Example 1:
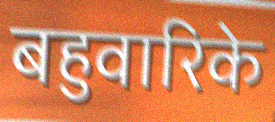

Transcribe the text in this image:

बहुवारिके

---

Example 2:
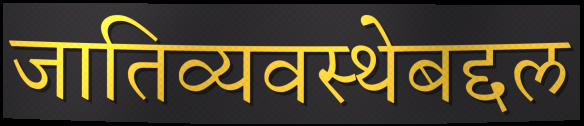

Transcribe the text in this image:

जातिव्यवस्थेबद्दल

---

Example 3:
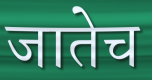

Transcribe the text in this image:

जातेच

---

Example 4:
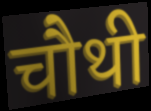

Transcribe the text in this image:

चौथी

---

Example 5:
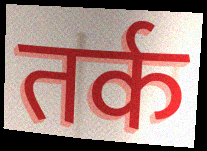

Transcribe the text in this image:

तर्क